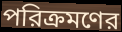
পরিক্রমণের